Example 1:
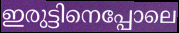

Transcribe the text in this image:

ഇരുട്ടിനെപ്പോലെ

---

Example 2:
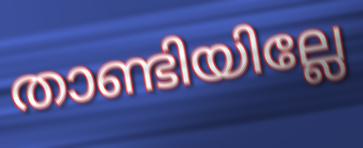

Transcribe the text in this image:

താണ്ടിയില്ലേ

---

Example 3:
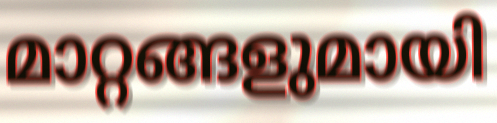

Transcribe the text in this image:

മാറ്റങ്ങളുമായി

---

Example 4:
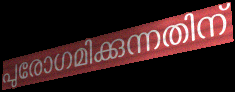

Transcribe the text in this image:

പുരോഗമിക്കുന്നതിന്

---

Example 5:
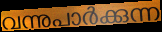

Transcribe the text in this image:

വന്നുപാർക്കുന്ന